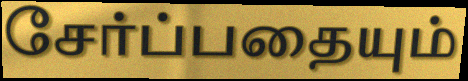
சேர்ப்பதையும்